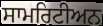
ਸਾਮਰਿਟੀਅਨ